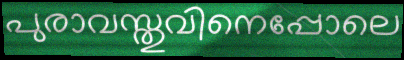
പുരാവസ്തുവിനെപ്പോലെ